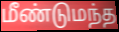
மீண்டுமந்த